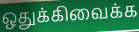
ஒதுக்கிவைக்க